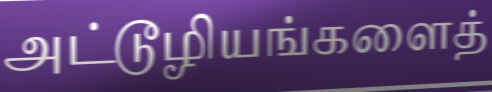
அட்டூழியங்களைத்